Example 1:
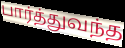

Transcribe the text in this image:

பார்த்துவந்த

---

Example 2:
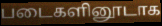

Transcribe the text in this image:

படைகளினூடாக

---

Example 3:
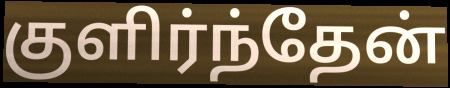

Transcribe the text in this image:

குளிர்ந்தேன்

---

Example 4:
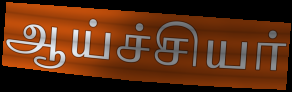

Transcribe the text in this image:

ஆய்ச்சியர்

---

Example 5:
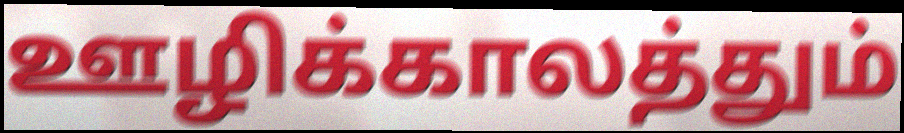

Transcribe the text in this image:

ஊழிக்காலத்தும்